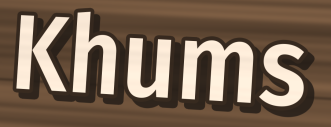
Khums